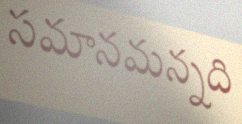
సమానమన్నది